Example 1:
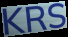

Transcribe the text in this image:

KRS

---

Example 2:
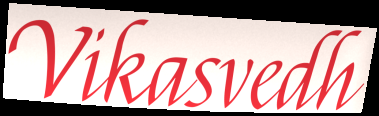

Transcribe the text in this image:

Vikasvedh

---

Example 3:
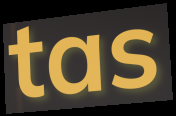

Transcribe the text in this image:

tas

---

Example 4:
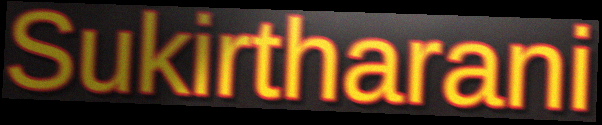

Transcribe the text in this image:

Sukirtharani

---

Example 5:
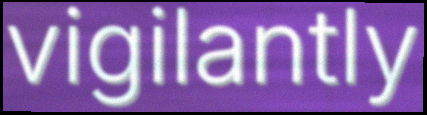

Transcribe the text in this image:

vigilantly